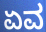
ಏವ